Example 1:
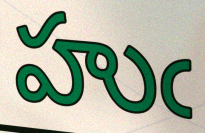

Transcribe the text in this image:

హుఁ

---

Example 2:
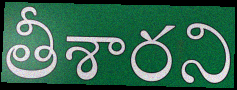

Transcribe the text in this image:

తీశారని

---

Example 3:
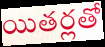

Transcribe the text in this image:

యితర్లతో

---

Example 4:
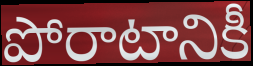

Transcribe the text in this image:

పోరాటానికీ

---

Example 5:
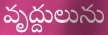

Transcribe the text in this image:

వృద్దులును